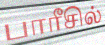
பாரீசில்